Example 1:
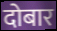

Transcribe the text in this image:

दोबार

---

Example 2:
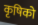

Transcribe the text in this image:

कृषिको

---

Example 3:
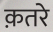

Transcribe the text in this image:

क़तरे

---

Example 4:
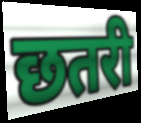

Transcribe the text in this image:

छतरी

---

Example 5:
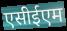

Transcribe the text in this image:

एसीईएम